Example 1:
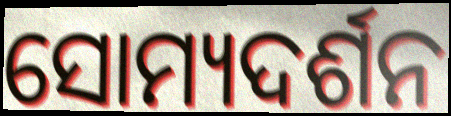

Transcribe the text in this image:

ସୋମ୍ଯଦର୍ଶନ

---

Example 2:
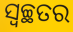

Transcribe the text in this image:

ସ୍ଵଚ୍ଛତର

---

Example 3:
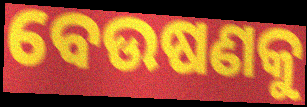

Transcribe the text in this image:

ବେଉଷଣକୁ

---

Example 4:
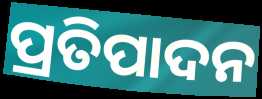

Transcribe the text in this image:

ପ୍ରତିପାଦନ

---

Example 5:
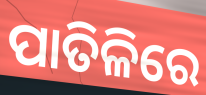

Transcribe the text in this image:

ପାତିଳିରେ